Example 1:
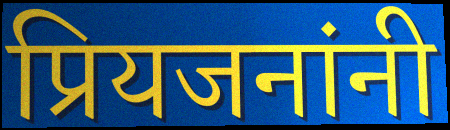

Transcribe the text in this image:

प्रियजनांनी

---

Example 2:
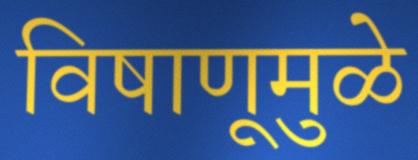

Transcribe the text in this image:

विषाणूमुळे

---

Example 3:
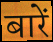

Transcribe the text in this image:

बारें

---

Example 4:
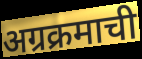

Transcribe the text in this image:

अग्रक्रमाची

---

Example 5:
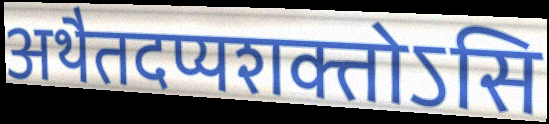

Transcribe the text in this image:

अथैतदप्यशक्तोऽसि